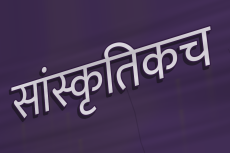
सांस्कृतिकच